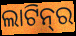
ଲାଟିନ୍‌ର